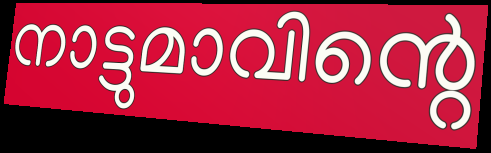
നാട്ടുമാവിന്റെ